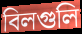
বিলগুলি